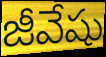
జీవేషు